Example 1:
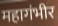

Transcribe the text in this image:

महागंभीर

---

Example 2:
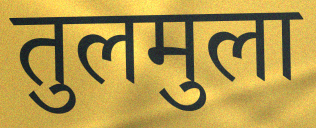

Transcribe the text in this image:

तुलमुला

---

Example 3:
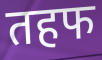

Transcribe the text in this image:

तहफ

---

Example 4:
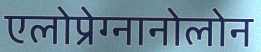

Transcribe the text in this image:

एलोप्रेग्नानोलोन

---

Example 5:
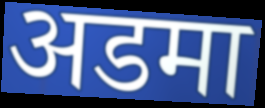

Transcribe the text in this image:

अडमा